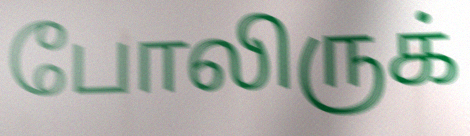
போலிருக்